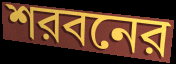
শরবনের